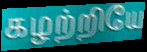
கழற்றியே